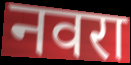
नवरा